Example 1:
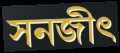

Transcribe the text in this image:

সনজীৎ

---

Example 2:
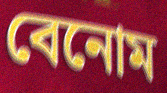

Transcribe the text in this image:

বেনোম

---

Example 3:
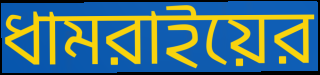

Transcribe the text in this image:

ধামরাইয়ের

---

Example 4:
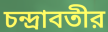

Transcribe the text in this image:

চন্দ্রাবতীর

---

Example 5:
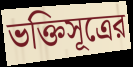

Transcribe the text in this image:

ভক্তিসূত্রের